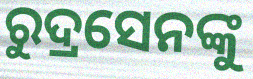
ରୁଦ୍ରସେନଙ୍କୁ